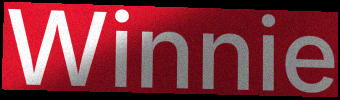
Winnie